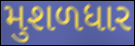
મુશળધાર